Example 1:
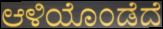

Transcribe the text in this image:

ಆಳಿಯೊಂಡೆದೆ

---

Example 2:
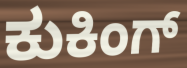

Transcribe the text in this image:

ಕುಕಿಂಗ್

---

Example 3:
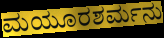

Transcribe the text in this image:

ಮಯೂರಶರ್ಮನು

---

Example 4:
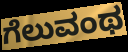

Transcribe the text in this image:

ಗೆಲುವಂಥ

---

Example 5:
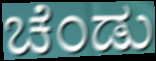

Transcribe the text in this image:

ಚೆಂಡು